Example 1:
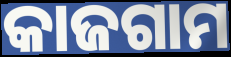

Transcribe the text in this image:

କାଜଗାମ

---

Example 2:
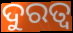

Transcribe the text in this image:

ଦୁରତ୍ଵ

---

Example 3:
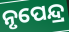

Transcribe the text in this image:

ନୃପେନ୍ଦ୍ର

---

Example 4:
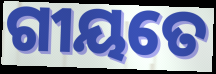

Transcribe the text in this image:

ଗୀୟତେ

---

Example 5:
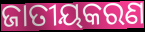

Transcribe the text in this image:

ଜାତୀୟକରଣ